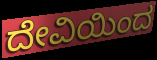
ದೇವಿಯಿಂದ